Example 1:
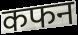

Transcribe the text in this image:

कफन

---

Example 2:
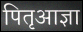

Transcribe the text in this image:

पितृआज्ञा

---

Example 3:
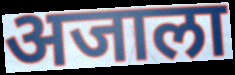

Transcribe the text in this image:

अजाला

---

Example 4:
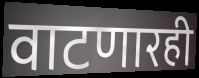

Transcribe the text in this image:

वाटणारही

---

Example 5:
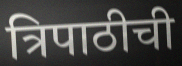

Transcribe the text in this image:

त्रिपाठीची